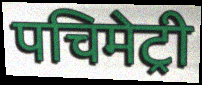
पचिमेट्री